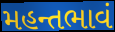
મહન્તભાવં